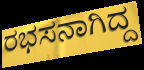
ರಭಸನಾಗಿದ್ದ